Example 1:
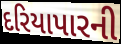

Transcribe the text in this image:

દરિયાપારની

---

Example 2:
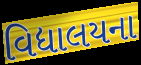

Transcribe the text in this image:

વિદ્યાલયના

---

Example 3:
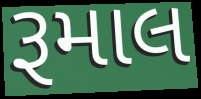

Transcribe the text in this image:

રૂમાલ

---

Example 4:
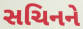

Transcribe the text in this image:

સચિનને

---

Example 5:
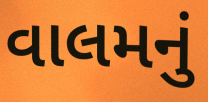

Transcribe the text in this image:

વાલમનું